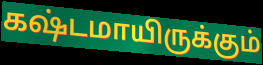
கஷ்டமாயிருக்கும்